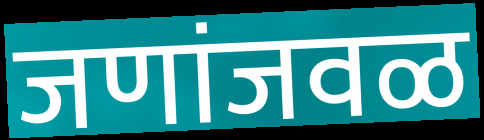
जणांजवळ